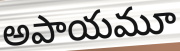
అపాయమూ